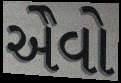
એેવો